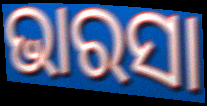
ଭାରସା